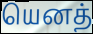
யெனத்